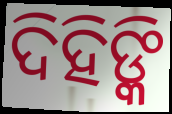
ଦିହିଙ୍କି